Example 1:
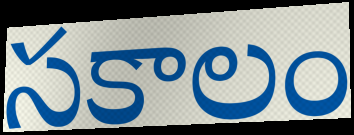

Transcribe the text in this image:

సకాలం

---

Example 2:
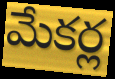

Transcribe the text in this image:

మేకర్ల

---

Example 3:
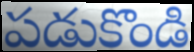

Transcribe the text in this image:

పడుకొండి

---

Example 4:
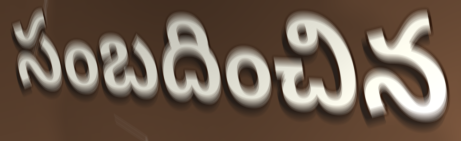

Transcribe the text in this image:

సంబదించిన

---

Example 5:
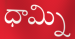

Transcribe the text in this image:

ధామ్ని